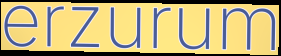
erzurum